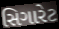
સિગારેટ